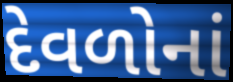
દેવળોનાં